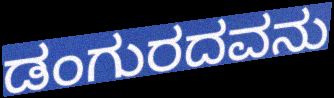
ಡಂಗುರದವನು